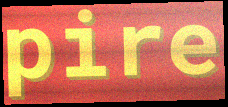
pire